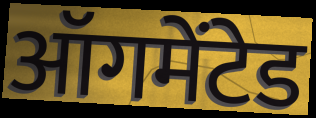
ऑगमेंटेड